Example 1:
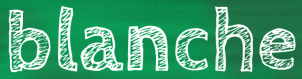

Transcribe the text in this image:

blanche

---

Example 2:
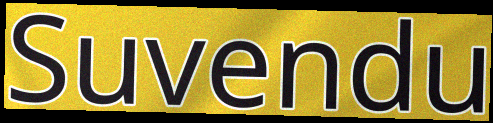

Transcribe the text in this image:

Suvendu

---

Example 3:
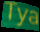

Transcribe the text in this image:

Tya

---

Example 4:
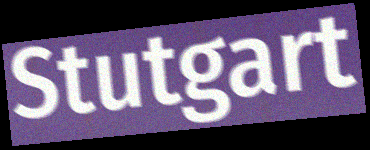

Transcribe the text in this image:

Stutgart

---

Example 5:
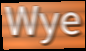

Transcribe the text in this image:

Wye